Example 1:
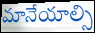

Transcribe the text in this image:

మానేయాల్సి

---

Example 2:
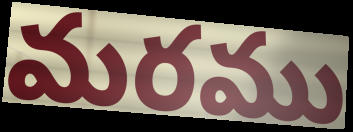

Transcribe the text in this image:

మరము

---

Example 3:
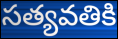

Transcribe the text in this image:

సత్యవతికి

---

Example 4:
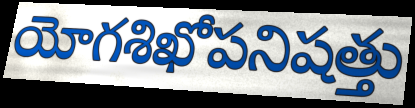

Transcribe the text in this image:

యోగశిఖోపనిషత్తు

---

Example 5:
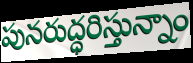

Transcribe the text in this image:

పునరుద్ధరిస్తున్నాం